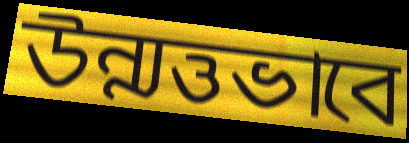
উন্মত্তভাবে